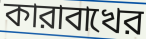
কারাবাখের